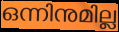
ഒന്നിനുമില്ല